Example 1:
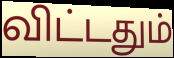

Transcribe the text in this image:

விட்டதும்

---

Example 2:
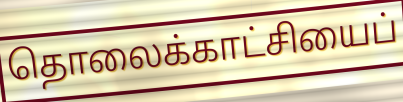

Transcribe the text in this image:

தொலைக்காட்சியைப்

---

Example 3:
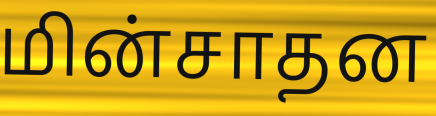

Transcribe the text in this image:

மின்சாதன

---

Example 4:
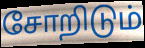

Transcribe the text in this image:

சோறிடும்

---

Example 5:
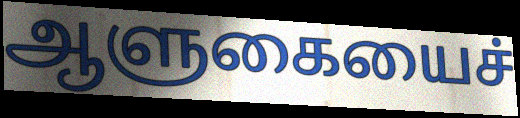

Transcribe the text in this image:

ஆளுகையைச்